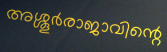
അശ്ശൂർരാജാവിന്റെ